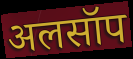
अलसॉप